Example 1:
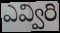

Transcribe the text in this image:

ఎవ్విరి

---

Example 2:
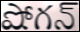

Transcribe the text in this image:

షోగన్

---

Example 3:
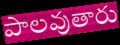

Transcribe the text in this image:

పాలవుతారు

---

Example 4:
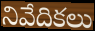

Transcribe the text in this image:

నివేదికలు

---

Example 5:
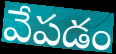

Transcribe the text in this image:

వేపడం